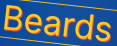
Beards